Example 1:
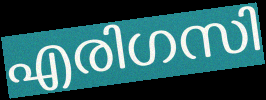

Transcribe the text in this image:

എരിഗസി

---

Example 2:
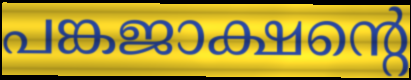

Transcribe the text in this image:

പങ്കജാക്ഷന്റെ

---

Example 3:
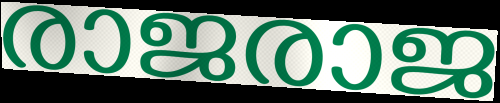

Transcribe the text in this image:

രാജരാജ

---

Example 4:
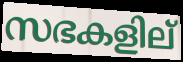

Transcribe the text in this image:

സഭകളില്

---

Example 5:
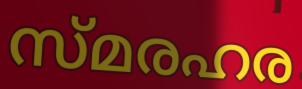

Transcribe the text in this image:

സ്മരഹര